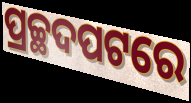
ପ୍ରଚ୍ଛଦପଟରେ